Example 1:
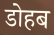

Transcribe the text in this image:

डोहब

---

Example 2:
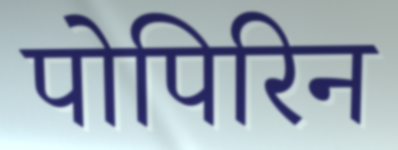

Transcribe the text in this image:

पोपिरिन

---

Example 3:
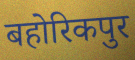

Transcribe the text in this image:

बहोरिकपुर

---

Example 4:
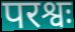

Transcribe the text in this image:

परश्वः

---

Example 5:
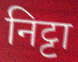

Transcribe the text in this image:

निट्टा